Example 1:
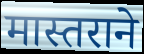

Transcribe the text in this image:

मास्तराने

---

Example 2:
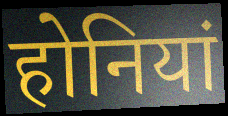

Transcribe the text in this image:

होनियां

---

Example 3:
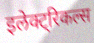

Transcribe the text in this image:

इलेक्ट्रिकल्स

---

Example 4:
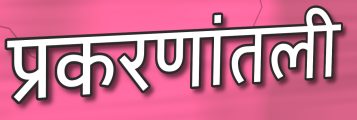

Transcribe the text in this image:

प्रकरणांतली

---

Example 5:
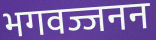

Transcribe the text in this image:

भगवज्जनन